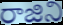
రాజిని